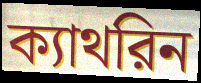
ক্যাথরিন